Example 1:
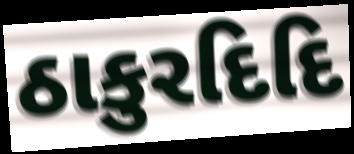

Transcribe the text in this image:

ઠાકુરદિદિ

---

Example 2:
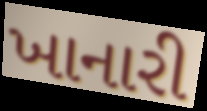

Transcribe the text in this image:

ખાનારી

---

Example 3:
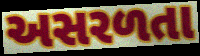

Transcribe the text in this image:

અસરળતા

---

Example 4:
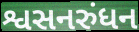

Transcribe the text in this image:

શ્વસનરુંધન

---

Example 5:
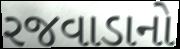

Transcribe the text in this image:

રજવાડાનો